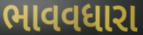
ભાવવધારા